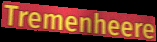
Tremenheere